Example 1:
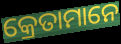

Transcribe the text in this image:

କ୍ରେତାମାନେ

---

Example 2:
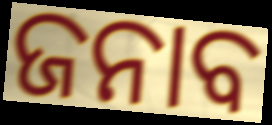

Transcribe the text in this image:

ଜନାବ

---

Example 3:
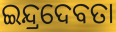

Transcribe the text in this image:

ଇନ୍ଦ୍ରଦେବତା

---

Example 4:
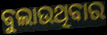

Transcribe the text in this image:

ବୁଲାଉଥିବାର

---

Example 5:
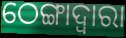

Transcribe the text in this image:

ଠେଙ୍ଗାଦ୍ୱାରା